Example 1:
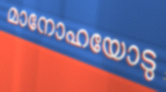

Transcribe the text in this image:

മാനോഹയോടു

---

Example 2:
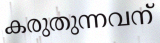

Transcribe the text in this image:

കരുതുന്നവന്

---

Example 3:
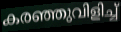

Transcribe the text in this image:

കരഞ്ഞുവിളിച്ച്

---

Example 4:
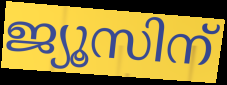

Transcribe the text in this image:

ജ്യൂസിന്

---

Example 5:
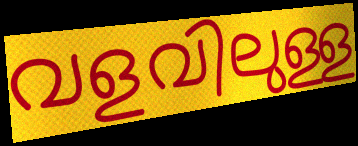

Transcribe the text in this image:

വളവിലുള്ള